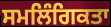
ਸਮਲਿੰਗਿਕਤਾ